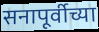
सनापूर्वीच्या